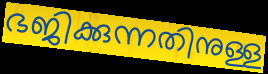
ഭജിക്കുന്നതിനുള്ള